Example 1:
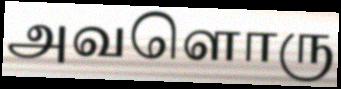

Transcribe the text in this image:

அவளொரு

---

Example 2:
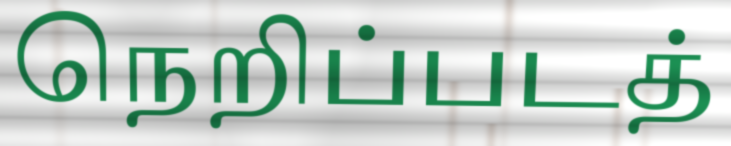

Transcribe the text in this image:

நெறிப்படத்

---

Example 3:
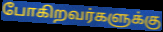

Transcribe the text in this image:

போகிறவர்களுக்கு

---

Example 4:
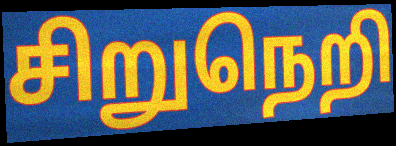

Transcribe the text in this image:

சிறுநெறி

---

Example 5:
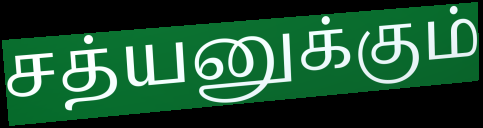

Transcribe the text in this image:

சத்யனுக்கும்